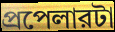
প্রপেলারটা